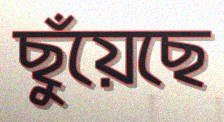
ছুঁয়েছে